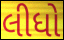
લીધો